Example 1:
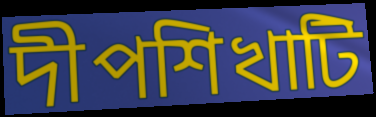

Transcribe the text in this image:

দীপশিখাটি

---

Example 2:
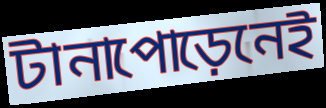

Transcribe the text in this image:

টানাপোড়েনেই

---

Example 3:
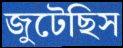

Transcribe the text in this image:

জুটেছিস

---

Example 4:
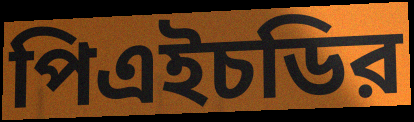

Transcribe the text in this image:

পিএইচডির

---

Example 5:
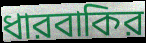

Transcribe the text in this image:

ধারবাকির